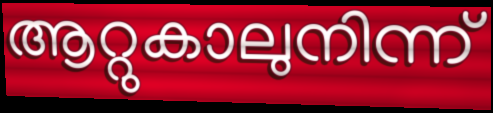
ആറ്റുകാലുനിന്ന്